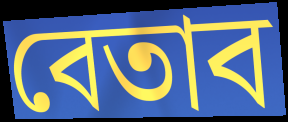
বেতাব